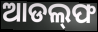
ଆଡଲ୍‌ଫ